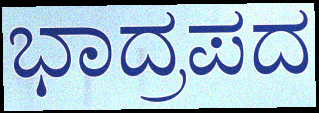
ಭಾದ್ರಪದ